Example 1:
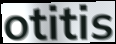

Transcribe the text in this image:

otitis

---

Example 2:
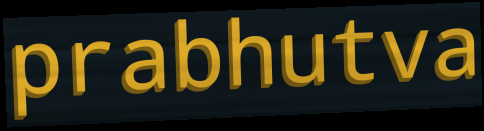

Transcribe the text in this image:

prabhutva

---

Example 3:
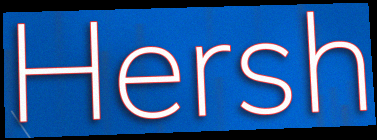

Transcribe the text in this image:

Hersh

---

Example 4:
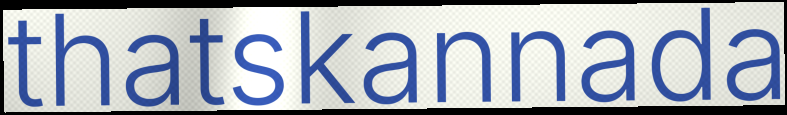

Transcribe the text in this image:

thatskannada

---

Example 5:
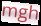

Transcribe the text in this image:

mgh